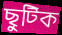
ছুট্কি